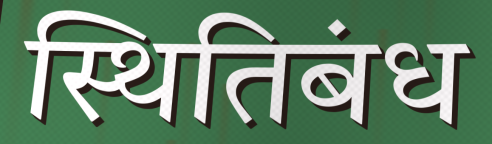
स्थितिबंध